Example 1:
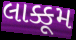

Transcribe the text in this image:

લાક્કૂમ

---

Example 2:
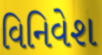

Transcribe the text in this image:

વિનિવેશ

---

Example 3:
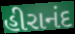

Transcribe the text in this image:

હીરાનંદ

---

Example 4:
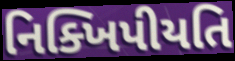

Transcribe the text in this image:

નિક્ખિપીયતિ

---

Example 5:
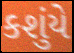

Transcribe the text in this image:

કશુંયે